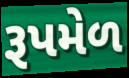
રૂપમેળ